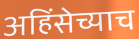
अहिंसेच्याच